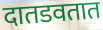
दातडवतात